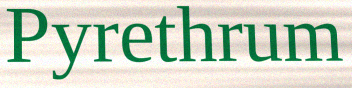
Pyrethrum